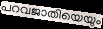
പറവജാതിയെയും